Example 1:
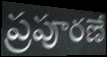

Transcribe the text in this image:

ప్రపూరణే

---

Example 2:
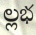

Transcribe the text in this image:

ల్లభ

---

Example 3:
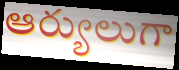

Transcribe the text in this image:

ఆర్యులుగా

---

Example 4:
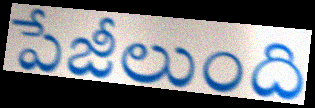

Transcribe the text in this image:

పేజీలుంది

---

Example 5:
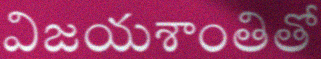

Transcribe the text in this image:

విజయశాంతితో